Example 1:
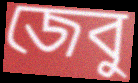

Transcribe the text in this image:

জেবু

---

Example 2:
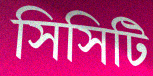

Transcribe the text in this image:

সিসিটি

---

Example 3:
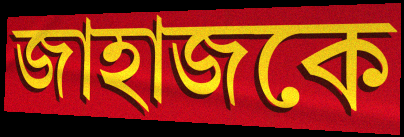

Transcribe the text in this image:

জাহাজকে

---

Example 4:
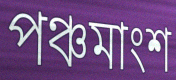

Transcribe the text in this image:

পঞ্চমাংশ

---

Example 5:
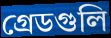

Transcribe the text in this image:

গ্রেডগুলি